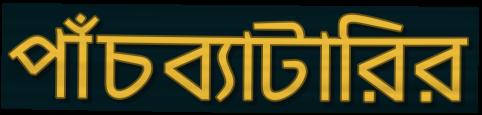
পাঁচব্যাটারির